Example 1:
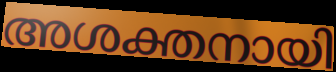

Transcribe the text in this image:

അശക്തനായി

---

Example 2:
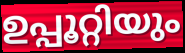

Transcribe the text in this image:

ഉപ്പൂറ്റിയും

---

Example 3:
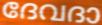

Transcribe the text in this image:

ദേവദാ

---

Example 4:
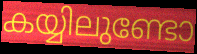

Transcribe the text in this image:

കയ്യിലുണ്ടോ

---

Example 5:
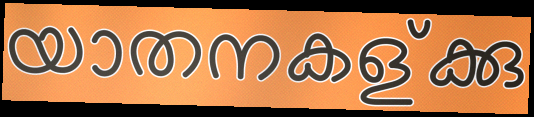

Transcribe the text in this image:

യാതനകള്ക്കു